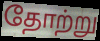
தோற்று